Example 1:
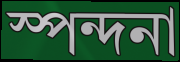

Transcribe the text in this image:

স্পন্দনা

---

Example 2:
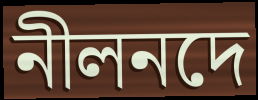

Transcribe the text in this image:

নীলনদে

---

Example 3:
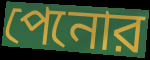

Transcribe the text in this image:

পেনোর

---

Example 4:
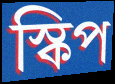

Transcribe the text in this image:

স্কিপ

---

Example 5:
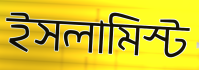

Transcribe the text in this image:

ইসলামিস্ট